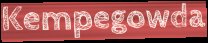
Kempegowda